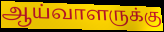
ஆய்வாளருக்கு